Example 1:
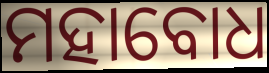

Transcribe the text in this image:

ମହାବୋଧ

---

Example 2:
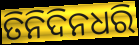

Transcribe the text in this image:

ତିନିଦିନଧରି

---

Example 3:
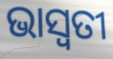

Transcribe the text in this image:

ଭାସ୍ବତୀ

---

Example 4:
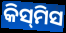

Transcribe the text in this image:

କିସ୍‌ମିସ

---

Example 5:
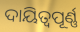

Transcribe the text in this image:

ଦାୟିତ୍ବପୂର୍ଣ୍ଣ